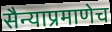
सैन्याप्रमाणेच